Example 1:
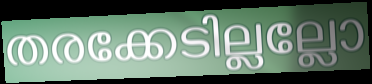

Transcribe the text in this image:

തരക്കേടില്ലല്ലോ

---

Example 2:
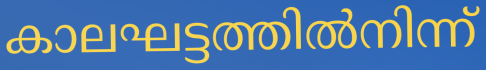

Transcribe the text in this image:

കാലഘട്ടത്തിൽനിന്ന്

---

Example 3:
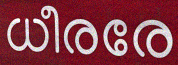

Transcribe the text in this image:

ധീരരേ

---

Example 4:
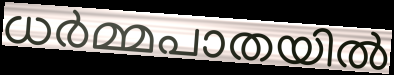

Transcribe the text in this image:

ധർമ്മപാതയിൽ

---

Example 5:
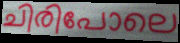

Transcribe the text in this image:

ചിരിപോലെ